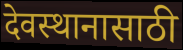
देवस्थानासाठी